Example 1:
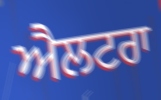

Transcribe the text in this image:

ਐਲਟਰਾ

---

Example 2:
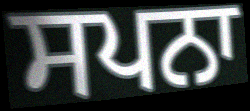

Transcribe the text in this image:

ਸਪਨਾ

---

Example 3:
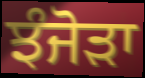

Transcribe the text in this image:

ਝੰਜੋੜਾ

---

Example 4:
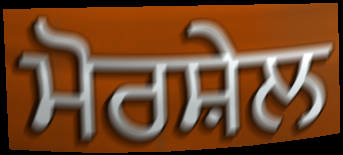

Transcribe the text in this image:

ਮੋਰਸ਼ੇਲ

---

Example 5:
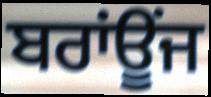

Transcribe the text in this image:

ਬਰਾਂਊਂਜ